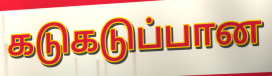
கடுகடுப்பான